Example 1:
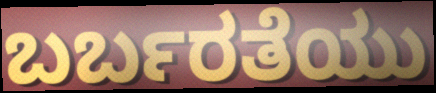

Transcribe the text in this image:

ಬರ್ಬರತೆಯು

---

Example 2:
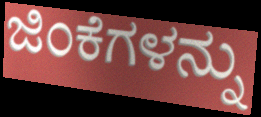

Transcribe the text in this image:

ಜಿಂಕೆಗಳನ್ನು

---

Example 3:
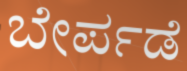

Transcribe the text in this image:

ಬೇರ್ಪಡೆ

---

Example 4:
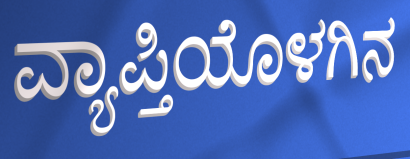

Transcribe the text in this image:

ವ್ಯಾಪ್ತಿಯೊಳಗಿನ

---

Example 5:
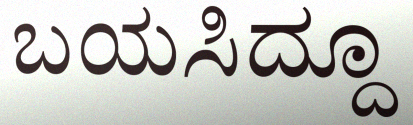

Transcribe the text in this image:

ಬಯಸಿದ್ದೂ